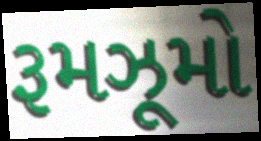
રૂમઝૂમો